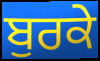
ਬੁਰਕੇ